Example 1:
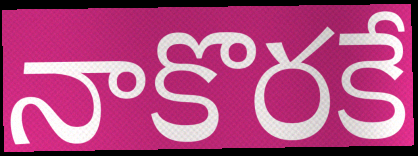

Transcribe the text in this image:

నాకొరకే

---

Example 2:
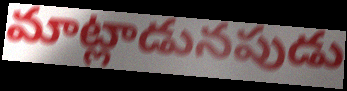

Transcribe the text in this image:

మాట్లాడునపుడు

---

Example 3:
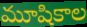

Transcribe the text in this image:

మూషికాల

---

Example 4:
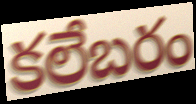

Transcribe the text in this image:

కలేబరం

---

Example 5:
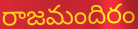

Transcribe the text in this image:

రాజమందిరం